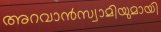
അറവാൻസ്വാമിയുമായി